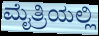
ಮೈತ್ರಿಯಲ್ಲಿ